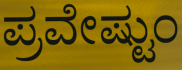
ಪ್ರವೇಷ್ಟುಂ